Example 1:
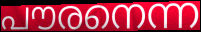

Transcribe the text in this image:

പൗരനെന്ന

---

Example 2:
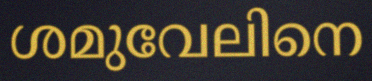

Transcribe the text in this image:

ശമുവേലിനെ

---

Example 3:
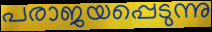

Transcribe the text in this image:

പരാജയപ്പെടുന്നു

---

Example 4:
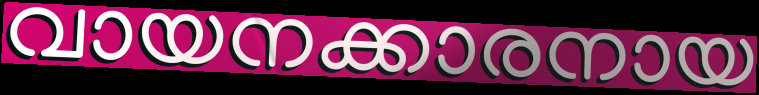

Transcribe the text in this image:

വായനക്കാരനായ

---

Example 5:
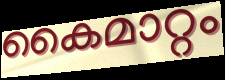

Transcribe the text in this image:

കൈമാറ്റം